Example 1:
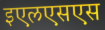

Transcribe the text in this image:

इएलएसएस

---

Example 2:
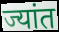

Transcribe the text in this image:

ज्यांत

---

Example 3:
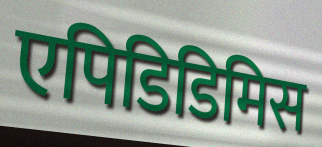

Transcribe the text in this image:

एपिडिडिमिस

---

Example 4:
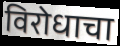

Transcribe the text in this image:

विरोधाचा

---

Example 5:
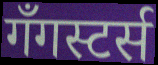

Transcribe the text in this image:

गँगस्टर्स